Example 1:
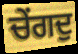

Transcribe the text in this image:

ਚੇਂਗਦੁ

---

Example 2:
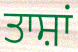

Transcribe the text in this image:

ਤਾਸ਼ਾਂ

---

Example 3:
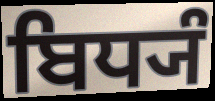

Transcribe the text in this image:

ਬਿਧ੍ਯੰ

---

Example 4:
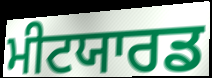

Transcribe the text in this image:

ਮੀਟਯਾਰਡ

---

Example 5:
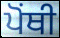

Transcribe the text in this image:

ਪੋਂਥੀ